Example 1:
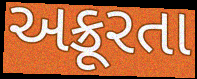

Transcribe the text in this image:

અક્રૂરતા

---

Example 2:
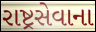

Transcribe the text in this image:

રાષ્ટ્રસેવાના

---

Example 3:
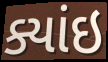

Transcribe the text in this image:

ક્યાંઇ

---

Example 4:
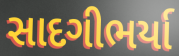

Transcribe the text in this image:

સાદગીભર્યા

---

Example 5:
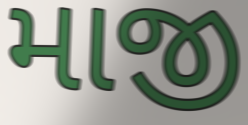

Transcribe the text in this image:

માજી